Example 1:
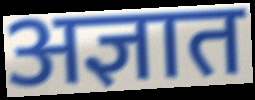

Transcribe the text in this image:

अज्ञात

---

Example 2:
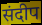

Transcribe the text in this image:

संदीप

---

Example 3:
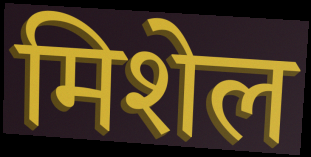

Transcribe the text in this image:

मिशेल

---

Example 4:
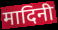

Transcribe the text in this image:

मादिनी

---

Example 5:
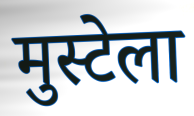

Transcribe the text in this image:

मुस्टेला